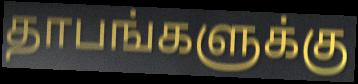
தாபங்களுக்கு